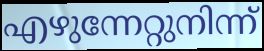
എഴുന്നേറ്റുനിന്ന്